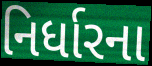
નિર્ધારના